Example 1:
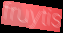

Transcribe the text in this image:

fruytis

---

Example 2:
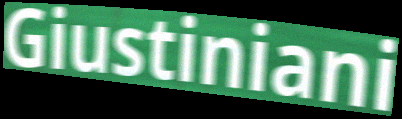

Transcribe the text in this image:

Giustiniani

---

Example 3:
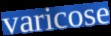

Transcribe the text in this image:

varicose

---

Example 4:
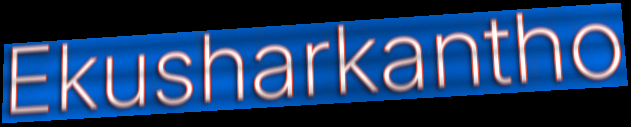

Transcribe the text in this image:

Ekusharkantho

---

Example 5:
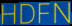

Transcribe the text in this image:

HDFN